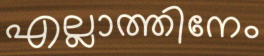
എല്ലാത്തിനേം